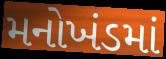
મનોખંડમાં